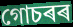
গোচৰৰ